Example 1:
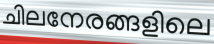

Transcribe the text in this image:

ചിലനേരങ്ങളിലെ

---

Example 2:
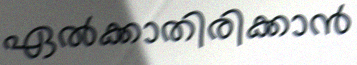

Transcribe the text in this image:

ഏൽക്കാതിരിക്കാൻ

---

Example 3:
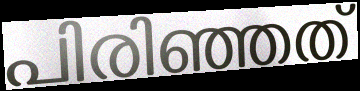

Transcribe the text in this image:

പിരിഞ്ഞത്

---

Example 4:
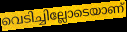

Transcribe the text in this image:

വെടിച്ചില്ലോടെയാണ്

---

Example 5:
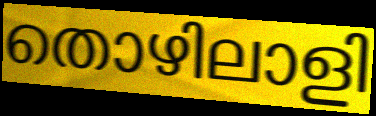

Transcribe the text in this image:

തൊഴിലാളി